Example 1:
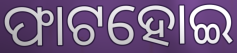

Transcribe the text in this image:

ଫାଟହୋଇ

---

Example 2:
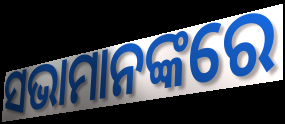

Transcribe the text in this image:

ସଭାମାନଙ୍କରେ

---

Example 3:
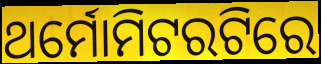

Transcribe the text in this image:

ଥର୍ମୋମିଟରଟିରେ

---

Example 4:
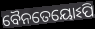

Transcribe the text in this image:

ବୈନତେୟୋଽପି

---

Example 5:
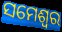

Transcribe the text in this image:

ସମେଶ୍ୱର